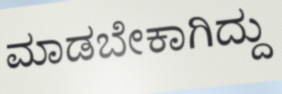
ಮಾಡಬೇಕಾಗಿದ್ದು